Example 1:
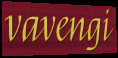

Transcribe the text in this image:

vavengi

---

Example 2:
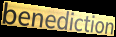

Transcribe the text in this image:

benediction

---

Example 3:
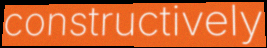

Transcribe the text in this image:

constructively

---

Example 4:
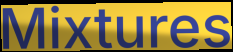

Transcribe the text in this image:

Mixtures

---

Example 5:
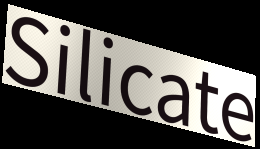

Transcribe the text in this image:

Silicate